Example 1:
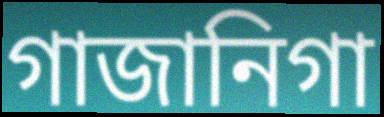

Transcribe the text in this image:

গাজানিগা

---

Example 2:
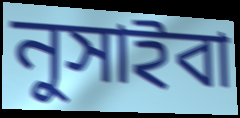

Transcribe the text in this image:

নুসাইবা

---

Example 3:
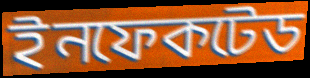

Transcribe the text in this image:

ইনফেকটেড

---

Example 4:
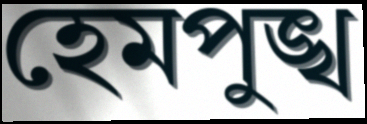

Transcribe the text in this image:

হেমপুঙ্খ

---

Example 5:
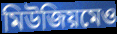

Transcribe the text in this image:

মিউজিয়মেও